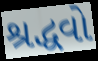
શ્રદ્ધવો